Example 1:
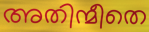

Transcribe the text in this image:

അതിന്മീതെ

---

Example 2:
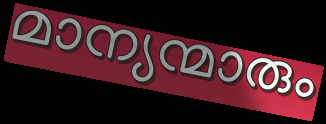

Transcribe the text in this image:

മാന്യന്മാരും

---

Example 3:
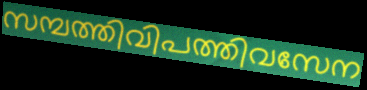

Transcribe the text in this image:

സമ്പത്തിവിപത്തിവസേന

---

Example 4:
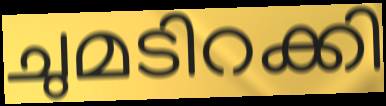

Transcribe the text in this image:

ചുമടിറക്കി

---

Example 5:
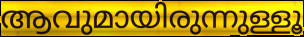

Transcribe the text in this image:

ആവുമായിരുന്നുള്ളൂ